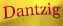
Dantzig